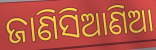
ଜାଣିସିଆଣିଆ